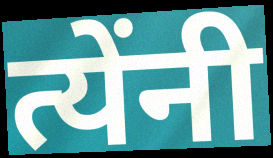
त्येंनी